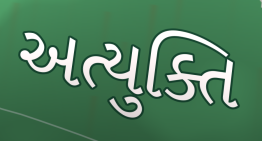
અત્યુક્તિ